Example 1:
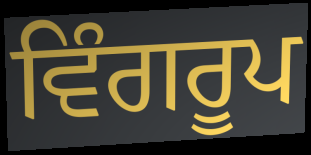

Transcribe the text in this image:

ਵਿੰਗਰੂਪ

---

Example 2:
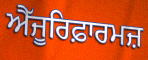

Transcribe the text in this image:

ਐੱਜੂਰਿਫ਼ਾਰਮਜ਼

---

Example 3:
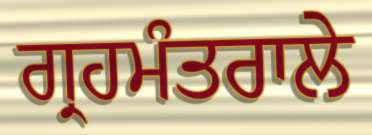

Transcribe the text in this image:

ਗ੍ਰਹਮੰਤਰਾਲੇ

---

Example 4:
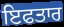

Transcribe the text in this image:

ਇਫਤਾਰ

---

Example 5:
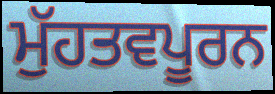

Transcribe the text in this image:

ਮੁੱਹਤਵਪੂਰਨ